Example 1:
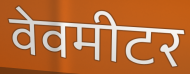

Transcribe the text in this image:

वेवमीटर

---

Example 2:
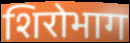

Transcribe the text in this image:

शिरोभाग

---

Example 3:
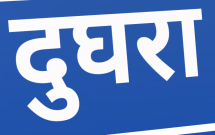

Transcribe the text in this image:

दुघरा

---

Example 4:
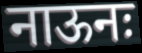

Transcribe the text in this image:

नाऊनः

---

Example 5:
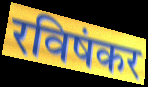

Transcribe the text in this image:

रविषंकर